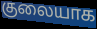
குலையாக